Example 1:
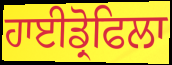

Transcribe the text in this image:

ਹਾਈਡ੍ਰੋਫਿਲਾ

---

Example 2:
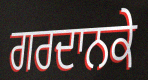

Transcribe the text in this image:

ਗਰਦਾਨਕੇ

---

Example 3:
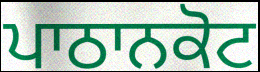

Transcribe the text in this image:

ਪਾਠਾਨਕੋਟ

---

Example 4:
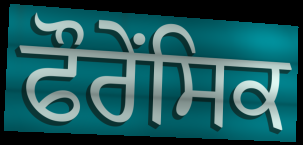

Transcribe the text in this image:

ਫੌਰੇਂਸਿਕ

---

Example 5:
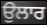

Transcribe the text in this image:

ਉਲਾਰ